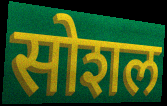
सोशल